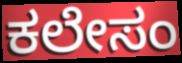
ಕಲೇಸಂ